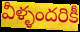
వీళ్ళందరికీ